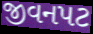
જીવનપટ